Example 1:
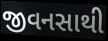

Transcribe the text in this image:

જીવનસાથી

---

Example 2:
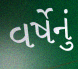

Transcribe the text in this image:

વર્ષેનું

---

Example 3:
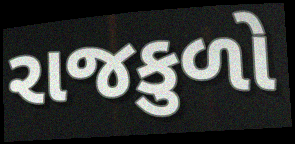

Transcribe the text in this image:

રાજકુળો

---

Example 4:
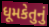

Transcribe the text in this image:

ધૂમકેતુનું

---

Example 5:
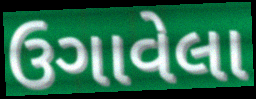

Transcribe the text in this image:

ઉગાવેલા